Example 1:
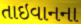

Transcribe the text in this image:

તાઇવાનના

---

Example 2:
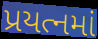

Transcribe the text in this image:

પ્રયત્નમાં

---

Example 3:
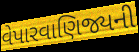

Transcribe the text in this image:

વેપારવાણિજ્યની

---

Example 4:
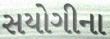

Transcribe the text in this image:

સયોગીના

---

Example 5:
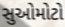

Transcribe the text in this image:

સુઓમોટો